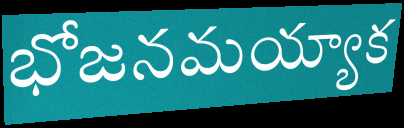
భోజనమయ్యాక